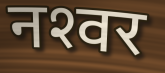
नश्वर